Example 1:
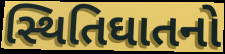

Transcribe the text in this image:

સ્થિતિઘાતનો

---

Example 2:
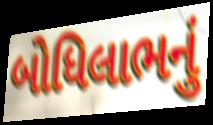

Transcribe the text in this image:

બોધિલાભનું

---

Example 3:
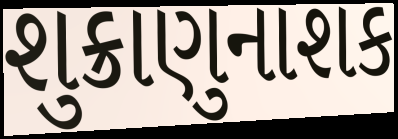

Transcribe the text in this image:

શુક્રાણુનાશક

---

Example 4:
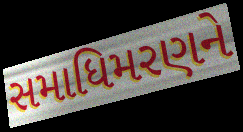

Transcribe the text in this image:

સમાધિમરણને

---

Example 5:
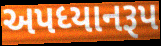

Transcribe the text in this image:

અપધ્યાનરૂપ